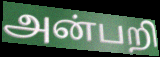
அன்பறி